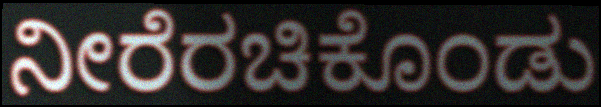
ನೀರೆರಚಿಕೊಂಡು